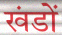
खंडों